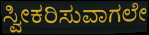
ಸ್ವೀಕರಿಸುವಾಗಲೇ